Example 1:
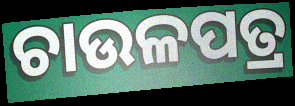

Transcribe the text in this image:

ଚାଉଳପତ୍ର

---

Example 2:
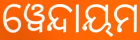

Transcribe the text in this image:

ୱେନ୍ଦାୟମ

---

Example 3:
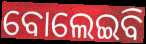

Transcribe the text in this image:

ବୋଲେଇବି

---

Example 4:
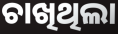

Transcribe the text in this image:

ଚାଖିଥିଲା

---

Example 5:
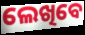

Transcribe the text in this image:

ଲେଖିବେ